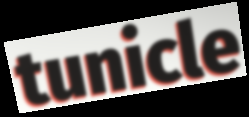
tunicle